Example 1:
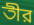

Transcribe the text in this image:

তীর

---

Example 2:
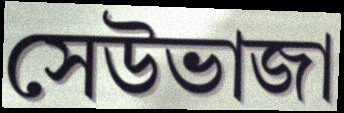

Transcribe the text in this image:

সেউভাজা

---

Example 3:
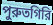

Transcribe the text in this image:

পুরুতগিরি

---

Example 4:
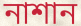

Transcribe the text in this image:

নাশান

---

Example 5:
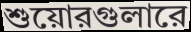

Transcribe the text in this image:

শুয়োরগুলারে